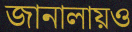
জানালায়ও